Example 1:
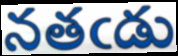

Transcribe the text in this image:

నతఁడు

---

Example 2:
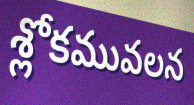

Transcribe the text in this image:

శ్లోకమువలన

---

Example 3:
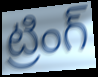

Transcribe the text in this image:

ట్రింగ్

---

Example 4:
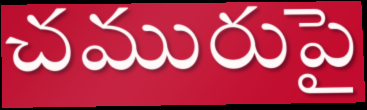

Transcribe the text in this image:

చమురుపై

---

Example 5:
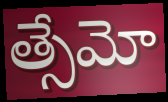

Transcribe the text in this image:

త్సేమో